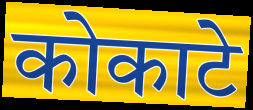
कोकाटे